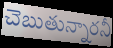
చెబుతున్నారనీ